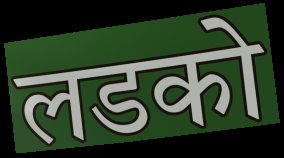
लडको